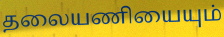
தலையணியையும்